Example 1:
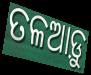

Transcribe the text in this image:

ତଳଆଡ଼ୁ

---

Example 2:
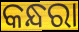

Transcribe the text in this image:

କନ୍ଧରା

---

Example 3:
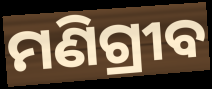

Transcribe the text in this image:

ମଣିଗ୍ରୀବ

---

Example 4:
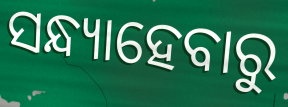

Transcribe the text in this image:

ସନ୍ଧ୍ୟାହେବାରୁ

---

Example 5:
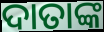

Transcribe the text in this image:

ଦାତାଙ୍କ